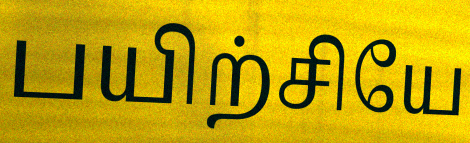
பயிற்சியே